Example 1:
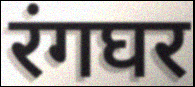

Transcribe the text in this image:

रंगघर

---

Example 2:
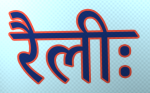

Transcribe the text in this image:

रैलीः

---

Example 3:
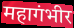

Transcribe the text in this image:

महागंभीर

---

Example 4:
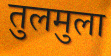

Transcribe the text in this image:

तुलमुला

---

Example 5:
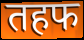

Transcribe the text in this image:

तहफ